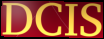
DCIS